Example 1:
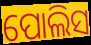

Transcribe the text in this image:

ପୋଲିସ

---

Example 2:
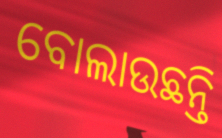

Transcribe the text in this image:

ବୋଲାଉଛନ୍ତି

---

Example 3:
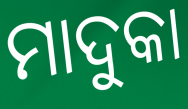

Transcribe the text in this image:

ମାଦୁକା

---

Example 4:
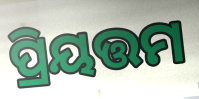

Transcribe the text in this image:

ପ୍ରିୟତ୍ତମ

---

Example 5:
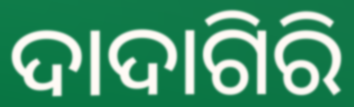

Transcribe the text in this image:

ଦାଦାଗିରି